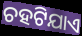
ଚହଟିଯାଏ